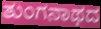
ತುಂಗನಾಥದ